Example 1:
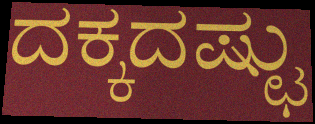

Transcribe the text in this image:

ದಕ್ಕದಷ್ಟು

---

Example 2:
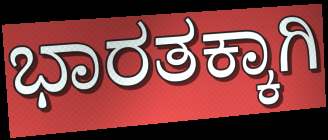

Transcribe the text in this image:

ಭಾರತಕ್ಕಾಗಿ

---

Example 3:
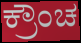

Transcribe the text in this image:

ಕ್ರೌಂಚ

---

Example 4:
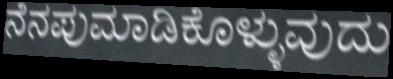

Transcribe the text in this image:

ನೆನಪುಮಾಡಿಕೊಳ್ಳುವುದು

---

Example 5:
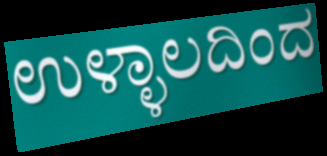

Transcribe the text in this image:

ಉಳ್ಳಾಲದಿಂದ